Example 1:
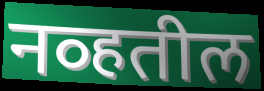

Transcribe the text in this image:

नव्हतील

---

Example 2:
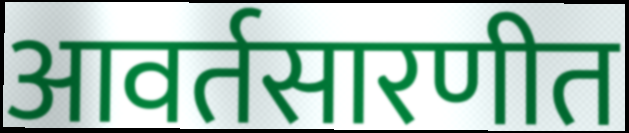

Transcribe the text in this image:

आवर्तसारणीत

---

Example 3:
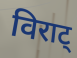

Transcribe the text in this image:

विराट्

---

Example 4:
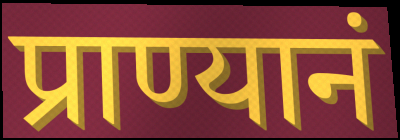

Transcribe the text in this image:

प्राण्यानं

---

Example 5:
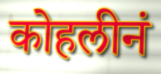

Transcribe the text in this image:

कोहलीनं